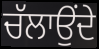
ਚੱਲਾਉਂਦੇ